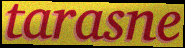
tarasne